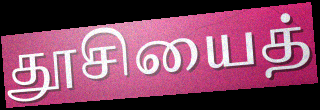
தூசியைத்